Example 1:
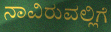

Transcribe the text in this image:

ನಾವಿರುವಲ್ಲಿಗೆ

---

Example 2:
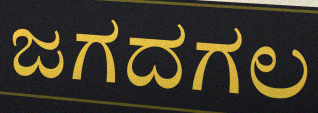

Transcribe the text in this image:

ಜಗದಗಲ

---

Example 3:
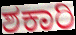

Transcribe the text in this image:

ಶಕಾರಿ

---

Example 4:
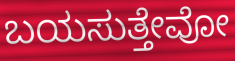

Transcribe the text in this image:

ಬಯಸುತ್ತೇವೋ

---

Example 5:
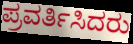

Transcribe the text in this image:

ಪ್ರವರ್ತಿಸಿದರು